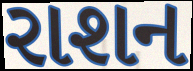
રાશન